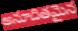
అనూదితమైన